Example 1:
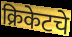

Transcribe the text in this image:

क्रिकेटचे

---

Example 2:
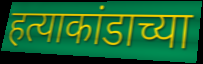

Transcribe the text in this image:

हत्याकांडाच्या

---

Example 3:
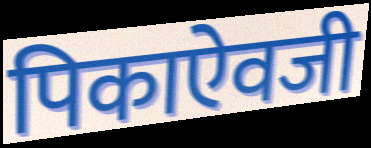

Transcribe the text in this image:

पिकाऐवजी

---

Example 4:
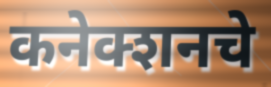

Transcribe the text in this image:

कनेक्शनचे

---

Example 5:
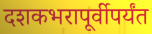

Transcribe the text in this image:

दशकभरापूर्वीपर्यंत